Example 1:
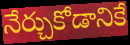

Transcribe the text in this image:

నేర్చుకోడానికే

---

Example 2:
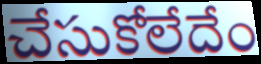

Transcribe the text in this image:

చేసుకోలేదేం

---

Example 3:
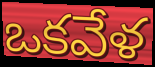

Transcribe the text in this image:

ఒకవేళ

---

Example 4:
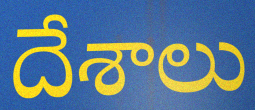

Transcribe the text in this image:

దేశాలు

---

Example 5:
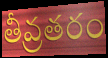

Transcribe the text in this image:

తీవ్రతరం